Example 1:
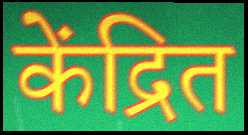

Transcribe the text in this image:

केंद्रित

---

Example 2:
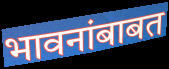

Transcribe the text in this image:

भावनांबाबत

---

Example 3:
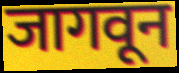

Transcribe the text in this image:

जागवून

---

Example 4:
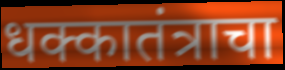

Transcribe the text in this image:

धक्कातंत्राचा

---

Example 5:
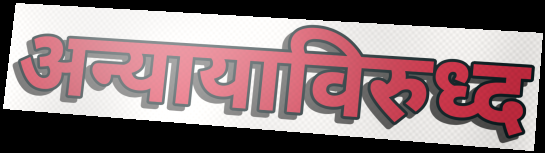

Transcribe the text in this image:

अन्यायाविरुध्द